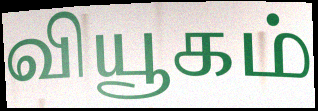
வியூகம்